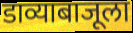
डाव्याबाजूला